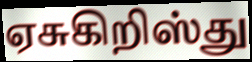
ஏசுகிறிஸ்து